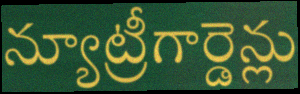
న్యూట్రీగార్డెన్లు